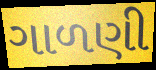
ગાળણી